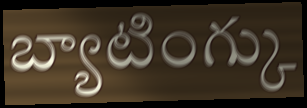
బ్యాటింగ్కు